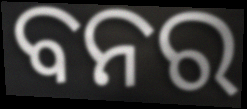
ବନର